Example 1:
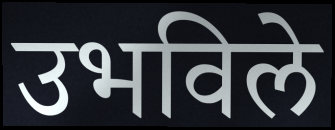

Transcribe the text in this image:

उभविले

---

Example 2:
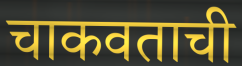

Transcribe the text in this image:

चाकवताची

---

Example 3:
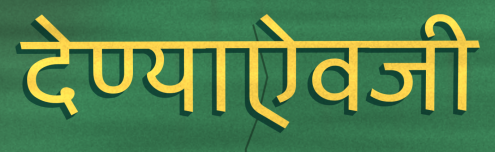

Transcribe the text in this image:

देण्याऐवजी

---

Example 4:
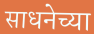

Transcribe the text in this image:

साधनेच्या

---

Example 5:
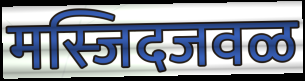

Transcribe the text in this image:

मस्जिदजवळ